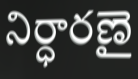
నిర్ధారణై